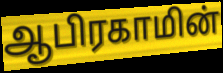
ஆபிரகாமின்